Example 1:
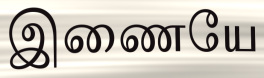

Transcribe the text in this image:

இணையே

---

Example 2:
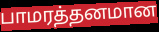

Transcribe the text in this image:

பாமரத்தனமான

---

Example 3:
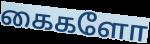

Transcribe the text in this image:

கைகளோ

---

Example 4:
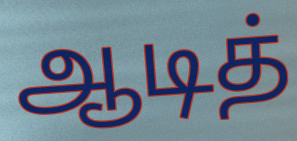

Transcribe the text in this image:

ஆடித்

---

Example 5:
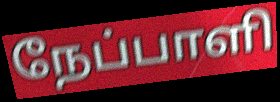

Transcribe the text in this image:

நேப்பாளி